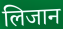
लिजान